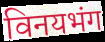
विनयभंग